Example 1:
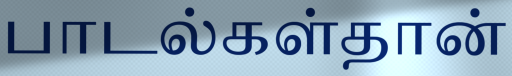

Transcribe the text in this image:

பாடல்கள்தான்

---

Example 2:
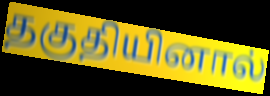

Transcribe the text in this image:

தகுதியினால்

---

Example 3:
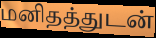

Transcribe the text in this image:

மனிதத்துடன்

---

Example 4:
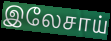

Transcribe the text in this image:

இலேசாய்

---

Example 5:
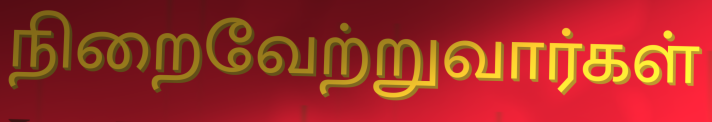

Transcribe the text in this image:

நிறைவேற்றுவார்கள்